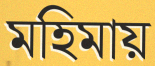
মহিমায়